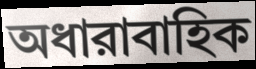
অধারাবাহিক